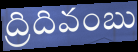
ద్రిదివంబు